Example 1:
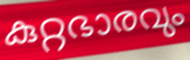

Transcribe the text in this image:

കുറ്റഭാരവും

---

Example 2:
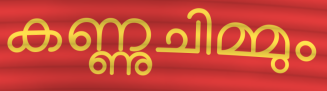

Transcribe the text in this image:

കണ്ണുചിമ്മും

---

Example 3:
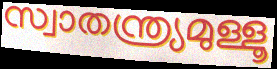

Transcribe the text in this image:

സ്വാതന്ത്ര്യമുള്ളൂ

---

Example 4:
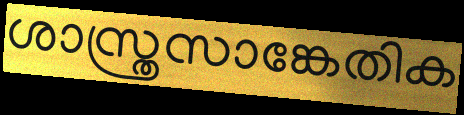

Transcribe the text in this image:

ശാസ്ത്രസാങ്കേതിക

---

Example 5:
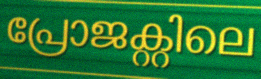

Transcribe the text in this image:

പ്രോജക്റ്റിലെ